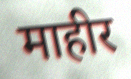
माहीर